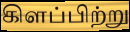
கிளப்பிற்று